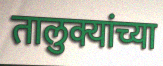
तालुक्यांच्या